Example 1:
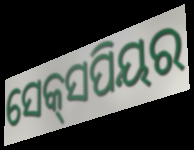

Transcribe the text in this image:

ସେକ୍‍ସପିୟର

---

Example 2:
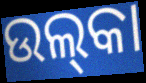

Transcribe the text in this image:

ଉଲ୍‌କା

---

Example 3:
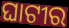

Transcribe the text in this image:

ଘାଟୀର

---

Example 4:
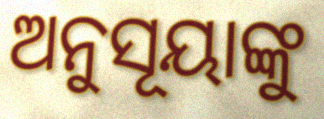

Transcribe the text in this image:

ଅନୁସୂୟାଙ୍କୁ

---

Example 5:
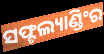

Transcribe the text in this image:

ସଫ୍ଟଲ୍ୟାଣ୍ଡିଂର